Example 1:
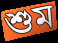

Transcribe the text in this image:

শুম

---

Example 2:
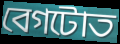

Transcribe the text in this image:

বেগটোত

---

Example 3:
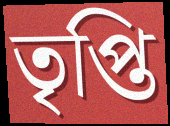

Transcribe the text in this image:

তৃপ্তি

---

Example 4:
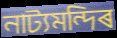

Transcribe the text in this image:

নাট্যমন্দিৰ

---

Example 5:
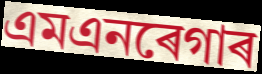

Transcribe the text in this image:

এমএনৰেগাৰ